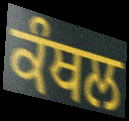
ਕੰਥਲ